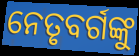
ନେତୃବର୍ଗଙ୍କୁ